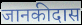
जानकीदास